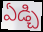
ఏడ్చి